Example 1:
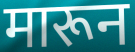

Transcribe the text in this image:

मारून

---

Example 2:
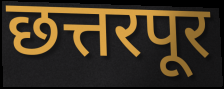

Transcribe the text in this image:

छत्तरपूर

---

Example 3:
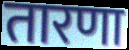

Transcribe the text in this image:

तारणा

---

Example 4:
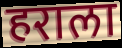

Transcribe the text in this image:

हराला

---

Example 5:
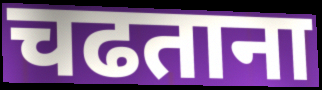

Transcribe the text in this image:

चढताना